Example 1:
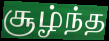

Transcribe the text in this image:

சூழ்ந்த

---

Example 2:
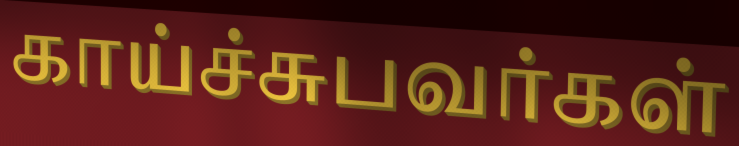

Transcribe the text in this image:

காய்ச்சுபவர்கள்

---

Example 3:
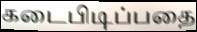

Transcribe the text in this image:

கடைபிடிப்பதை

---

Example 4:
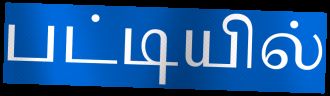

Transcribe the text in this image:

பட்டியில்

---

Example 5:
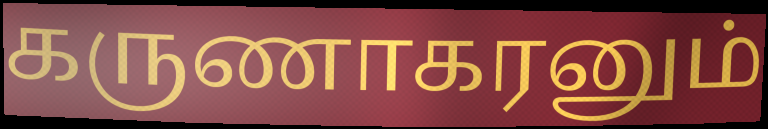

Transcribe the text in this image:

கருணாகரனும்